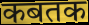
कबतक